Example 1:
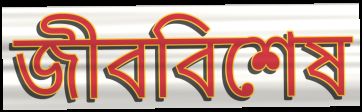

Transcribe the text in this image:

জীববিশেষ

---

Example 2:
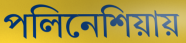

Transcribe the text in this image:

পলিনেশিয়ায়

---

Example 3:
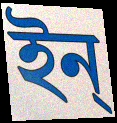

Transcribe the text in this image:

ইন্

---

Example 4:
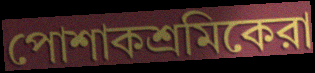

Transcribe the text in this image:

পোশাকশ্রমিকেরা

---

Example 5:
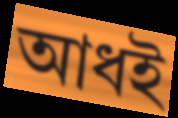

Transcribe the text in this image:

আধই